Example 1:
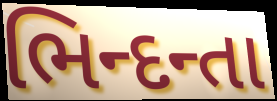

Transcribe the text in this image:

ભિન્દન્તા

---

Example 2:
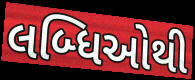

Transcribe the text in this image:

લબ્ધિઓથી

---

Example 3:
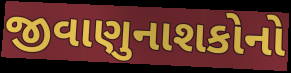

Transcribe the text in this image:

જીવાણુનાશકોનો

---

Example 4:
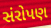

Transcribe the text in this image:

સંરોપણ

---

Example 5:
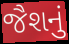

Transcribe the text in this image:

જૈશનું